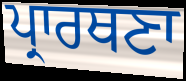
ਪ੍ਰਾਰਥਣਾ